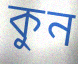
কুন